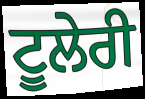
ਟੂਲੇਰੀ